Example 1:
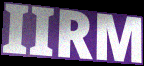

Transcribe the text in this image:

IIRM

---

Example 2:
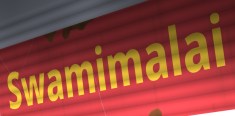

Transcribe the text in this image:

Swamimalai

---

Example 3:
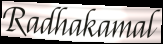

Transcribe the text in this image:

Radhakamal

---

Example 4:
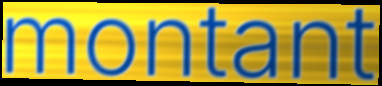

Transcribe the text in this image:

montant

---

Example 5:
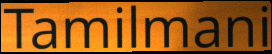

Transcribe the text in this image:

Tamilmani